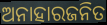
ଅନାହାରଜନିତ